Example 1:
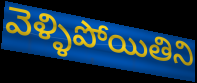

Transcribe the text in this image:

వెళ్ళిపోయితిని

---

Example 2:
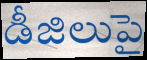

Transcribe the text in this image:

డీజిలుపై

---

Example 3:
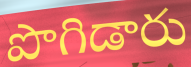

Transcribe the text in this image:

పొగిడారు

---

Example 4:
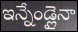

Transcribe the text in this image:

ఇన్నేండ్లైనా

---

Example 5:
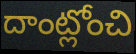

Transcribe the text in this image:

దాంట్లోంచి